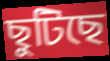
ছুটিছে